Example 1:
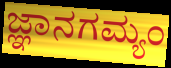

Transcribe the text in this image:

ಜ್ಞಾನಗಮ್ಯಂ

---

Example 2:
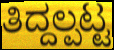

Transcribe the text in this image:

ತಿದ್ದಲ್ಪಟ್ಟ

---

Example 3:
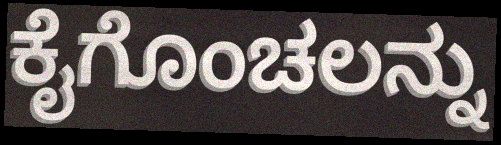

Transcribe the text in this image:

ಕೈಗೊಂಚಲನ್ನು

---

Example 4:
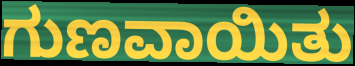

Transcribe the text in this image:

ಗುಣವಾಯಿತು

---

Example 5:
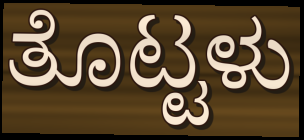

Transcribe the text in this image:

ತೊಟ್ಟಳು